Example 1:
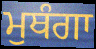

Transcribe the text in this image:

ਮੁਥੰਗਾ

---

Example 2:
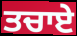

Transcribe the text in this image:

ਤਚਾਏ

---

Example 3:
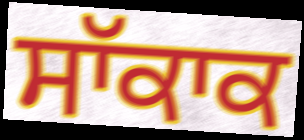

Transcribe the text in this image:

ਸਾੱਕਾਕ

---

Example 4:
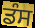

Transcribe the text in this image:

ਡੰਸ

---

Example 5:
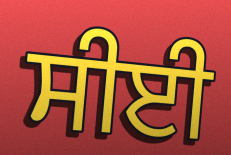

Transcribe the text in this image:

ਸੀਈ